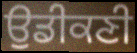
ਉਡੀਕਣੀ